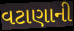
વટાણાની